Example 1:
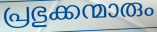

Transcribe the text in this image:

പ്രഭുക്കന്മാരും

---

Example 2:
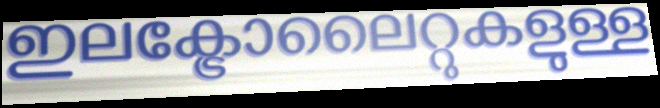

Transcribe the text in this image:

ഇലക്ട്രോലൈറ്റുകളുള്ള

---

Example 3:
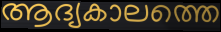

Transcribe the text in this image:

ആദ്യകാലത്തെ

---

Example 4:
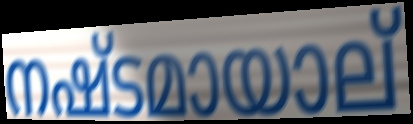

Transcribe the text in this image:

നഷ്ടമായാല്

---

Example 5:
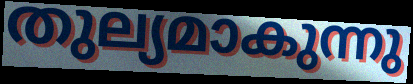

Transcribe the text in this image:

തുല്യമാകുന്നു